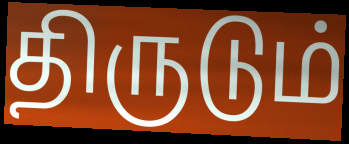
திருடும்